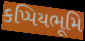
કપ્પિયભૂમિ